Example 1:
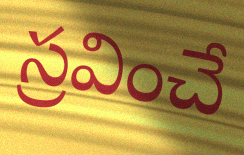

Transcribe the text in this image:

స్రవించే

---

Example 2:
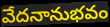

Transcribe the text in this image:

వేదనానుభవం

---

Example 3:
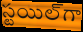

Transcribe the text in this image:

స్టయిల్‌గా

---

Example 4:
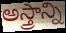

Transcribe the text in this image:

అస్త్రాన్ని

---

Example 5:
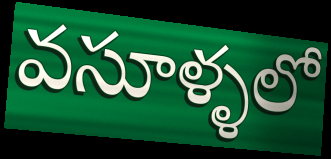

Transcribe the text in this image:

వసూళ్ళలో